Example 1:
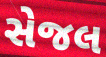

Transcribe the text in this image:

સેજલ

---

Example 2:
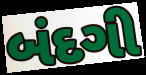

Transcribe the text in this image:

બંદગી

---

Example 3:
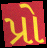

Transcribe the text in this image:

પ્રો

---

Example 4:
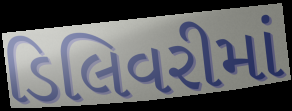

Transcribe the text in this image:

ડિલિવરીમાં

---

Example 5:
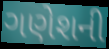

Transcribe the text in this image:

ગણેશની